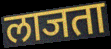
लाजता